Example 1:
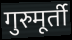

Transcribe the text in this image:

गुरुमूर्ती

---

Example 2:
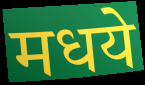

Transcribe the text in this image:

मधये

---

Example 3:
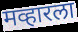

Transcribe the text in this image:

मव्हारला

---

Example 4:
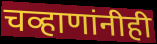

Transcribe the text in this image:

चव्हाणांनीही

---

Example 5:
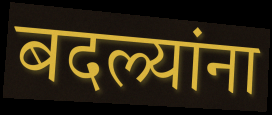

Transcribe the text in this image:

बदल्यांना